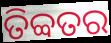
ତିବ୍ବତର